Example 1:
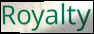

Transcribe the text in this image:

Royalty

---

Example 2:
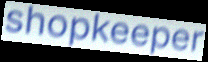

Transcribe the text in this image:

shopkeeper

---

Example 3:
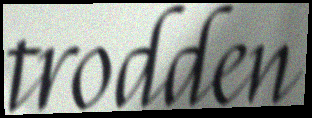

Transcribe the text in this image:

trodden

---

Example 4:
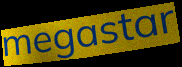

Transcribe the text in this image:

megastar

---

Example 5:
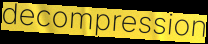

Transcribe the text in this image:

decompression